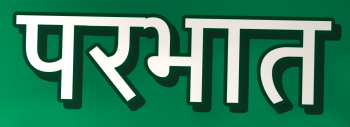
परभात